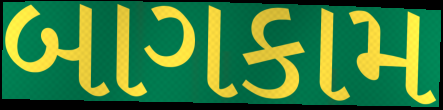
બાગકામ